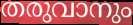
തരുവാനും